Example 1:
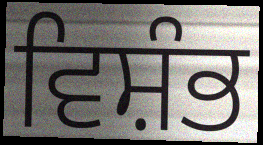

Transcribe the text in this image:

ਵਿਸ਼ੰਭ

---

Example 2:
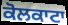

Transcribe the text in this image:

ਕੋਲਕਾਟਾ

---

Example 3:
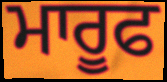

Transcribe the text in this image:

ਮਾਰੂਫ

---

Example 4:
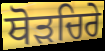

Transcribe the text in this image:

ਥੋੜਚਿਰੇ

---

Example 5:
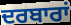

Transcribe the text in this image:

ਦਰਬਾਰਾਂ